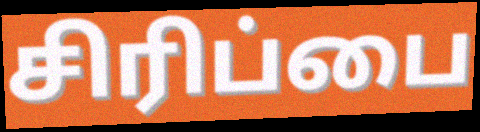
சிரிப்பை